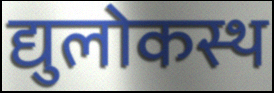
द्युलोकस्थ